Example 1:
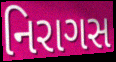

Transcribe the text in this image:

નિરાગસ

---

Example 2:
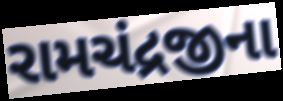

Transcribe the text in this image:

રામચંદ્રજીના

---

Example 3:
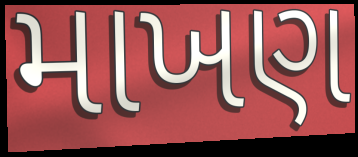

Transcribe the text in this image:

માખણ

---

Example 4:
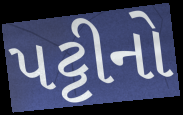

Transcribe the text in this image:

પટ્ટીનો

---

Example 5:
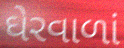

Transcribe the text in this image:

ઘેરવાળાં